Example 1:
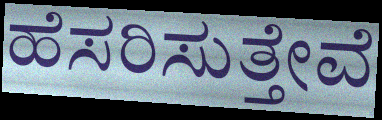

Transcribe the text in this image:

ಹೆಸರಿಸುತ್ತೇವೆ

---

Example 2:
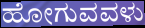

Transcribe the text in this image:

ಹೋಗುವವಳು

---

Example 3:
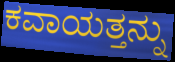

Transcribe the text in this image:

ಕವಾಯತ್ತನ್ನು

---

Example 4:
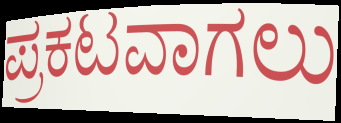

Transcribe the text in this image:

ಪ್ರಕಟವಾಗಲು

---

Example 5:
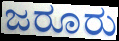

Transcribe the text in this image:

ಜರೂರು